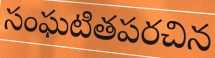
సంఘటితపరచిన